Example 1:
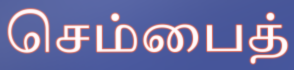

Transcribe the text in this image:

செம்பைத்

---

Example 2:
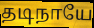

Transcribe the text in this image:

தடிநாயே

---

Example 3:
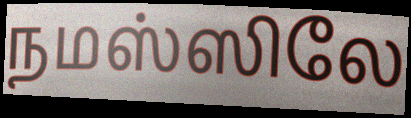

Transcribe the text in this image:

நமஸ்ஸிலே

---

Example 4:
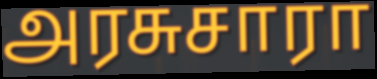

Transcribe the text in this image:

அரசுசாரா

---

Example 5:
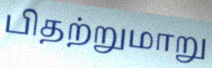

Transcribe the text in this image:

பிதற்றுமாறு